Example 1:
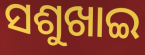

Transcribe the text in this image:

ସଶୁଖାଇ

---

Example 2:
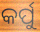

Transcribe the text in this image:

କର୍ପୁ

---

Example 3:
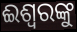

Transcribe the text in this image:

ଈଶ୍ଵରଙ୍କୁ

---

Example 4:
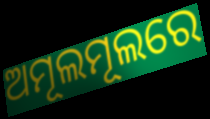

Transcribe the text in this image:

ଅମୂଲମୂଲରେ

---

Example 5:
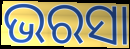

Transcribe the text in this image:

ଭରସା